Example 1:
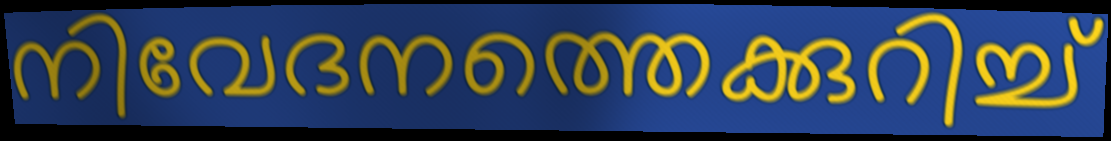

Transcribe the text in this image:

നിവേദനത്തെക്കുറിച്ച്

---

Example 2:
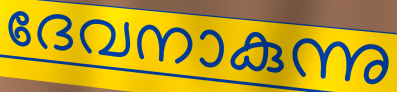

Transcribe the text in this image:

ദേവനാകുന്നു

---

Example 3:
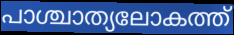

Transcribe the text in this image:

പാശ്ചാത്യലോകത്ത്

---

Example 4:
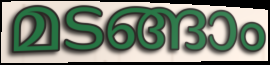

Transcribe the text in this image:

മടങ്ങാം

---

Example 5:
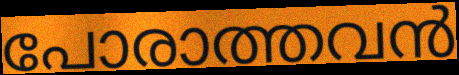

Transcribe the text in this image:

പോരാത്തവൻ